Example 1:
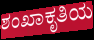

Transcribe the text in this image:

ಶಂಖಾಕೃತಿಯ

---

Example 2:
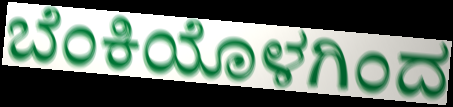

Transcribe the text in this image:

ಬೆಂಕಿಯೊಳಗಿಂದ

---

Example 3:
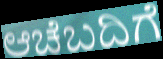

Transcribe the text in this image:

ಆಚೆಬದಿಗೆ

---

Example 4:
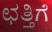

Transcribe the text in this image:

ಛತ್ತಿಗೆ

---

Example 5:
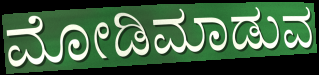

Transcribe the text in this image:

ಮೋಡಿಮಾಡುವ